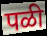
पळी